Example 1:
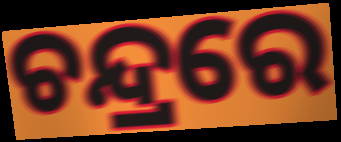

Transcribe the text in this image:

ଚନ୍ଦ୍ରରେ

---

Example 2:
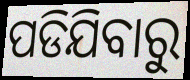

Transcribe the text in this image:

ପଡିଯିବାରୁ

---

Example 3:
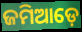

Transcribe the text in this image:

ଜମିଆଡ଼େ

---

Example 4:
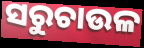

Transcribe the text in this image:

ସରୁଚାଉଳ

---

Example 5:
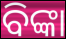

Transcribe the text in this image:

ବିଙ୍କା